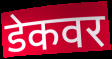
डेकवर